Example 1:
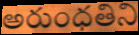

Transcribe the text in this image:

అరుంధతిని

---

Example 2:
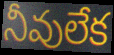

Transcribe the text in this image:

నీవులేక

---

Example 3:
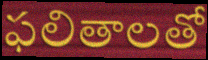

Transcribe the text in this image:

ఫలితాలతో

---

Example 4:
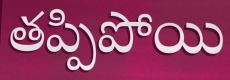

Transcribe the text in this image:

తప్పిపోయి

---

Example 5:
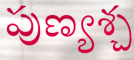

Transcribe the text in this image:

పుణ్యశ్చ